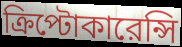
ক্রিপ্টোকারেন্সি